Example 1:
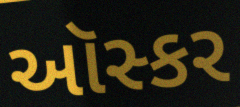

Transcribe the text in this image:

ઑસ્કર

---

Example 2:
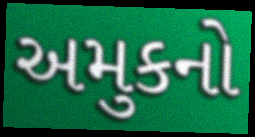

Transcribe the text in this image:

અમુકનો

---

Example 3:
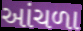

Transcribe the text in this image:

આંચળા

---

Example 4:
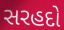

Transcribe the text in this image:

સરહદો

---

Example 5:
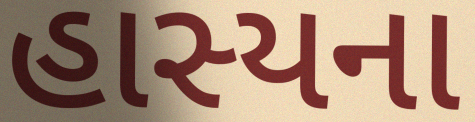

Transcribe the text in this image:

હાસ્યના